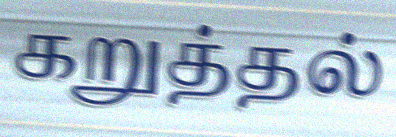
கறுத்தல்